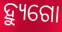
ହ୍ୟୁଗୋ